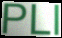
PLI